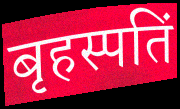
बृहस्पतिं